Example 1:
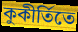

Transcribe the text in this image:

কুকীর্তিতে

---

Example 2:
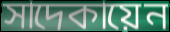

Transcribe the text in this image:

সাদেকায়েন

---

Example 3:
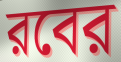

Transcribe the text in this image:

রবের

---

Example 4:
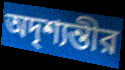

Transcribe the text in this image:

অদৃশ্যন্তীর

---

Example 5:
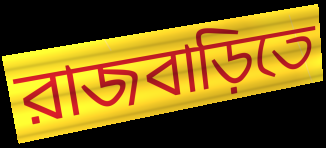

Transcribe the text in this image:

রাজবাড়িতে